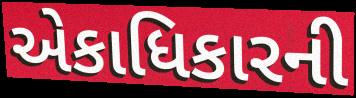
એકાધિકારની